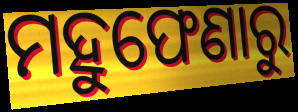
ମହୁଫେଣାରୁ